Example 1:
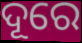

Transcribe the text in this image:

ଦୂରେ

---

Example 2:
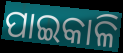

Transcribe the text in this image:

ପାଇକାଳି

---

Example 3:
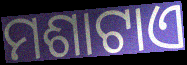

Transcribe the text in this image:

ମଶାଟାଏ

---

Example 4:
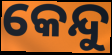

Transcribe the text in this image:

କେନ୍ଦୁ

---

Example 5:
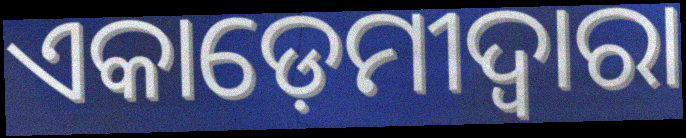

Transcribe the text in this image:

ଏକାଡ଼େମୀଦ୍ଵାରା